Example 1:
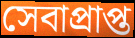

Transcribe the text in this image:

সেবাপ্রাপ্ত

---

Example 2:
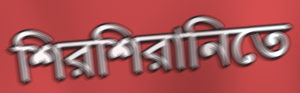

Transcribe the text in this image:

শিরশিরানিতে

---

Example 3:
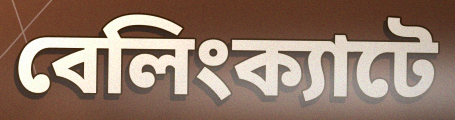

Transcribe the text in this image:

বেলিংক্যাটে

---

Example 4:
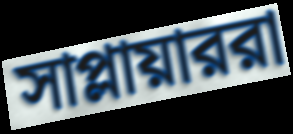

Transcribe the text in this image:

সাপ্লায়াররা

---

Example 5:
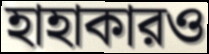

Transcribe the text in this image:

হাহাকারও